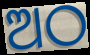
ଅଠ